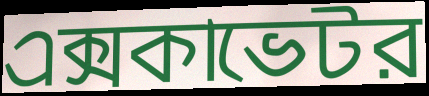
এক্সকাভেটর